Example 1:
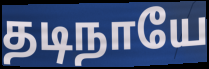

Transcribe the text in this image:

தடிநாயே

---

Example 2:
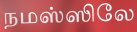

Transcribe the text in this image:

நமஸ்ஸிலே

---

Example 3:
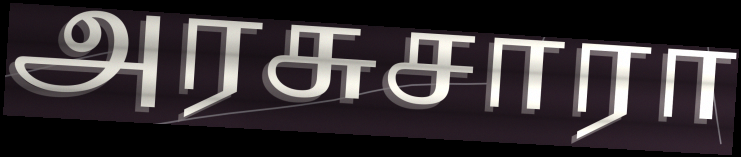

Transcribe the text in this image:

அரசுசாரா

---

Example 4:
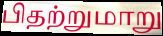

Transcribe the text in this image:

பிதற்றுமாறு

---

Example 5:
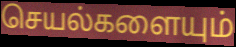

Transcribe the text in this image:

செயல்களையும்